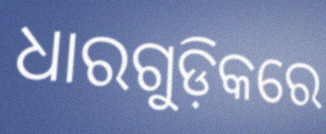
ଧାରଗୁଡ଼ିକରେ